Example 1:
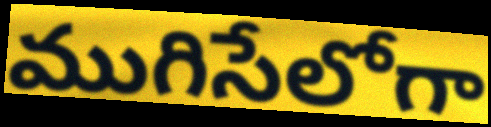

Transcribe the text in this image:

ముగిసేలోగా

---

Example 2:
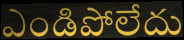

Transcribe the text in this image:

ఎండిపోలేదు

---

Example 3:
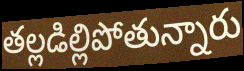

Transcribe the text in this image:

తల్లడిల్లిపోతున్నారు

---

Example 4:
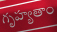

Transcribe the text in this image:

గృహ్యతాం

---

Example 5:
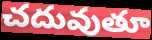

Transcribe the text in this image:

చదువుతూ